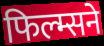
फिल्म्सने